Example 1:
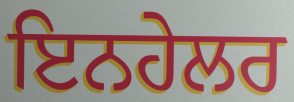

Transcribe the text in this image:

ਇਨਹੇਲਰ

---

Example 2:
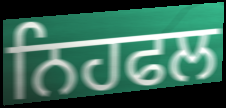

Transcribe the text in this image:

ਨਿਹਫਲ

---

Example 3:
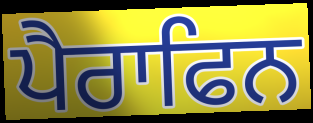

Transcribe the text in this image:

ਪੈਰਾਫਿਨ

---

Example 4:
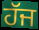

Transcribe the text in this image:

ਹੱਜ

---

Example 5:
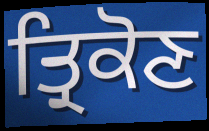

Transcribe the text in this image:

ਤ੍ਰਿਕੋਣ